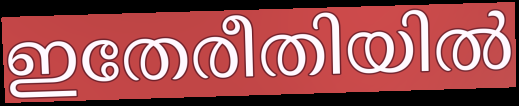
ഇതേരീതിയിൽ